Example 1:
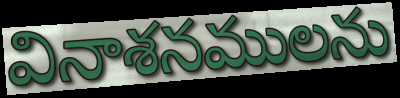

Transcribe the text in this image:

వినాశనములను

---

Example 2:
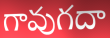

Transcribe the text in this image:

గావుగదా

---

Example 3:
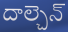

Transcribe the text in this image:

దాల్చెన్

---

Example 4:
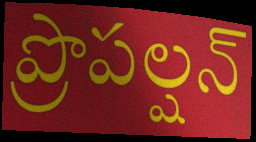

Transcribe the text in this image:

ప్రొపల్షన్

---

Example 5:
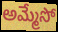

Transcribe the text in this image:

అమ్మేసో